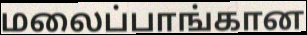
மலைப்பாங்கான